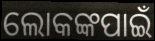
ଲୋକଙ୍କପାଇଁ